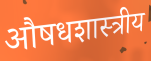
औषधशास्त्रीय